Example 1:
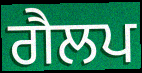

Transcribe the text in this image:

ਗੈਲਪ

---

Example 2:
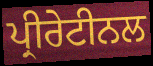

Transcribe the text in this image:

ਪ੍ਰੀਰੇਟੀਨਲ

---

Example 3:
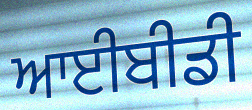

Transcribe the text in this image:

ਆਈਬੀਡੀ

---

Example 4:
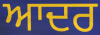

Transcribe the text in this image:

ਆਦਰ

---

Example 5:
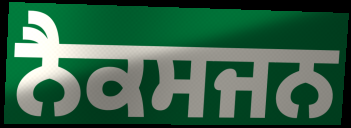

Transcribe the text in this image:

ਨੈਕਸਜਨ